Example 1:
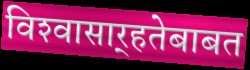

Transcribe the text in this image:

विश्वासार्हतेबाबत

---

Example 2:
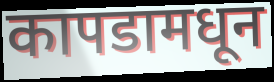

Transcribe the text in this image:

कापडामधून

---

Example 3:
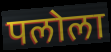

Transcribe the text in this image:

पलोला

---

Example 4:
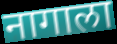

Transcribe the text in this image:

नागाला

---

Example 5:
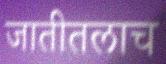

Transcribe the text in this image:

जातीतलाच